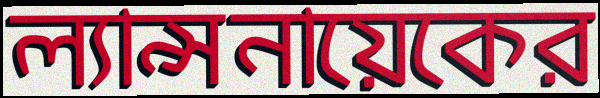
ল্যান্সনায়েকের